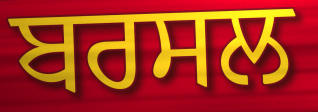
ਬਰਸਲ